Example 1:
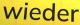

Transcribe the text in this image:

wieder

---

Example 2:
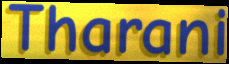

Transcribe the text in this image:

Tharani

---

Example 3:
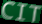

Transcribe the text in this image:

CIT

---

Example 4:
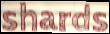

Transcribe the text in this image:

shards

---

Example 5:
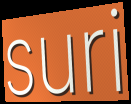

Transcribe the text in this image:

suri